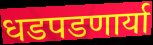
धडपडणार्या